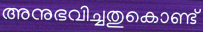
അനുഭവിച്ചതുകൊണ്ട്